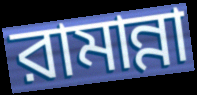
রামান্না